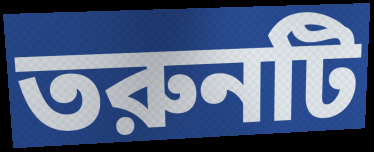
তরুনটি